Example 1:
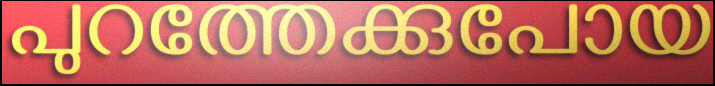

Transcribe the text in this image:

പുറത്തേക്കുപോയ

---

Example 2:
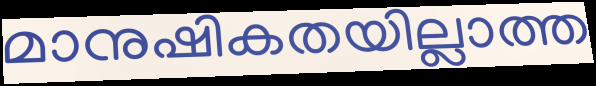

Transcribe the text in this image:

മാനുഷികതയില്ലാത്ത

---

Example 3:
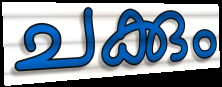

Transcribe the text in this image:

ചക്കും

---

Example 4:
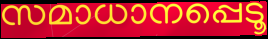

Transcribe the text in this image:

സമാധാനപ്പെടൂ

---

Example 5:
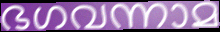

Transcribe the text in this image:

ഭഗവന്നാമ